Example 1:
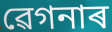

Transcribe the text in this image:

ৱেগনাৰ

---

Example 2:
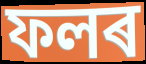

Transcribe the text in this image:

ফলৰ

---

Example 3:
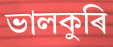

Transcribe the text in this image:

ভালকুৰি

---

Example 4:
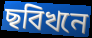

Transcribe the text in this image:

ছবিখনে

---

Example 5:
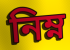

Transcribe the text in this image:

নিম্ন